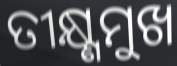
ତୀକ୍ଷ୍ଣମୁଖ